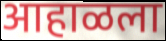
आहाळला